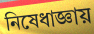
নিষেধাজ্ঞায়